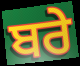
ਬਰੇ